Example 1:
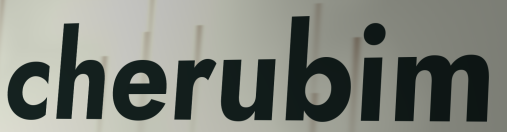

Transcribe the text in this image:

cherubim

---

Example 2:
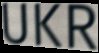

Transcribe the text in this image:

UKR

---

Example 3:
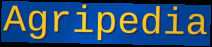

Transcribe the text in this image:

Agripedia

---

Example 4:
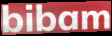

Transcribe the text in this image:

bibam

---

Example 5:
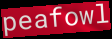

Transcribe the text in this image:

peafowl